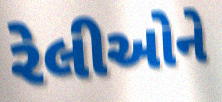
રેલીઓને